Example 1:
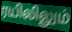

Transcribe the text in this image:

ரயிலிலும்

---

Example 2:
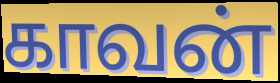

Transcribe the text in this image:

காவன்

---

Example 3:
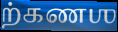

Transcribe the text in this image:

ற்கணஶ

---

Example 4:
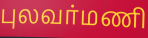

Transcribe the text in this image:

புலவர்மணி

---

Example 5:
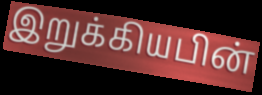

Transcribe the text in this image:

இறுக்கியபின்